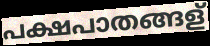
പക്ഷപാതങ്ങള്